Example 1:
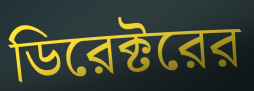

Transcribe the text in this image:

ডিরেক্টরের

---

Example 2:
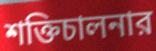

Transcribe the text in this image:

শক্তিচালনার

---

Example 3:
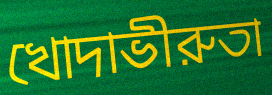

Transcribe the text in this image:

খোদাভীরুতা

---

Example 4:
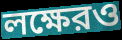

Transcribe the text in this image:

লক্ষেরও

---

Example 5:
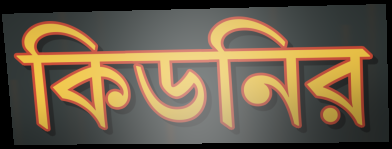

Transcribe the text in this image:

কিডনির